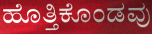
ಹೊತ್ತಿಕೊಂಡವು